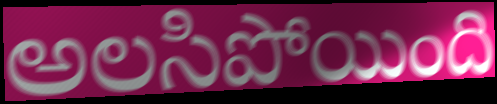
అలసిపోయింది